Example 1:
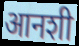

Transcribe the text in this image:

आनशी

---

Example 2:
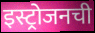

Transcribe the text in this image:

इस्ट्रोजनची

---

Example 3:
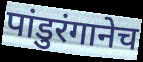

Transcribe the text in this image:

पांडुरंगानेच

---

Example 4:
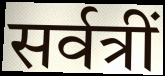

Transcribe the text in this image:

सर्वत्रीं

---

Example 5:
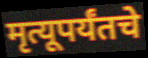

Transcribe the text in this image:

मृत्यूपर्यंतचे